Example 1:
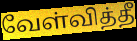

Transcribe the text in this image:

வேள்வித்தீ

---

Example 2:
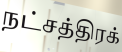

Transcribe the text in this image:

நட்சத்திரக்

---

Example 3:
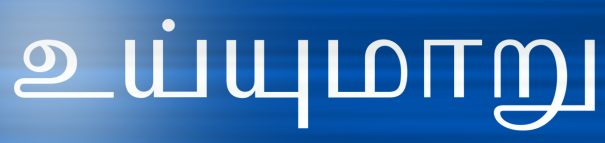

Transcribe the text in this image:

உய்யுமாறு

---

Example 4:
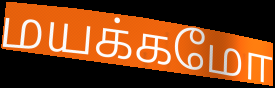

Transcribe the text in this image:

மயக்கமோ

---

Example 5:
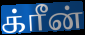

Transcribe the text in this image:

க்ரீன்